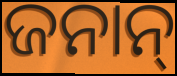
ଜନାନ୍